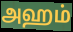
அஹம்